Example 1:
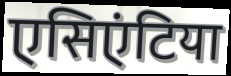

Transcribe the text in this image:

एसिएंटिया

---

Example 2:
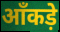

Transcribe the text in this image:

ऑंकड़े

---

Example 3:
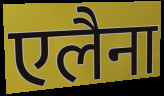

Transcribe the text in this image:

एलैना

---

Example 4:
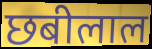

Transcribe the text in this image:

छबीलाल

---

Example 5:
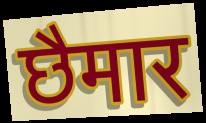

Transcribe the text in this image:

छैमार